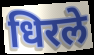
धिरले